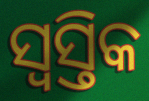
ସ୍ୱସ୍ତିକ